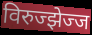
विरुज्झेज्ज